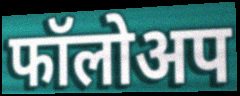
फॉलोअप